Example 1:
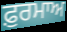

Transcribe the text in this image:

ਫ਼ੁਰਮਾਅ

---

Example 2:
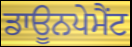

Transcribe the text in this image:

ਡਾਊਨਪੇਮੈਂਟ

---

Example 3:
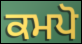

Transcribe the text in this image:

ਕਮਪੋ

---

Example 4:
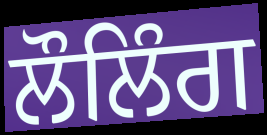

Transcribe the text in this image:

ਲੌਲਿੰਗ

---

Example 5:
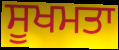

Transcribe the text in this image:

ਸੂਖਮਤਾ